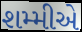
શમ્મીએ